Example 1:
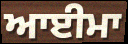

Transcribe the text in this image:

ਆਈਮਾ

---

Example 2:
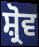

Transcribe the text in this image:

ਸ਼੍ਰੋਵ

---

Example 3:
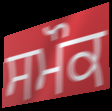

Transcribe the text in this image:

ਸਮੌਕ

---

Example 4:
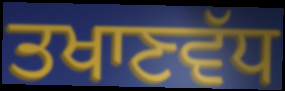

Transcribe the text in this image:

ਤਖਾਣਵੱਧ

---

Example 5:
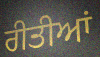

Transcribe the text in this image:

ਰੀਤੀਆਂ